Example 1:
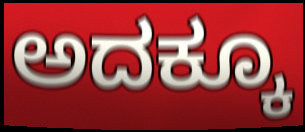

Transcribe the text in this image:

ಅದಕ್ಕೂ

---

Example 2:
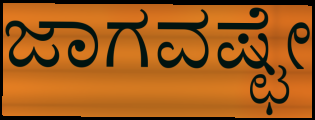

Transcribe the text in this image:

ಜಾಗವಷ್ಟೇ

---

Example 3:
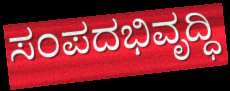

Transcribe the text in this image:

ಸಂಪದಭಿವೃದ್ಧಿ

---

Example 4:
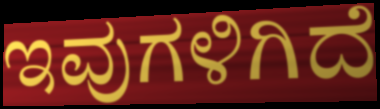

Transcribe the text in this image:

ಇವುಗಳಿಗಿದೆ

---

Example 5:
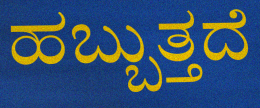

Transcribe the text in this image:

ಹಬ್ಬುತ್ತದೆ